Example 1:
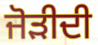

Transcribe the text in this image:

ਜੋੜੀਦੀ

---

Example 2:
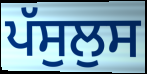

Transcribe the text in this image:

ਪੱਸੁਲੁਸ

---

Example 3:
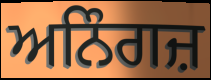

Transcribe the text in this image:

ਅਨਿੰਗਜ਼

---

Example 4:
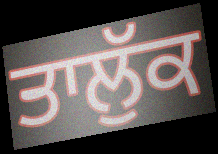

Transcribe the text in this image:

ਤਾਲੁੱਕ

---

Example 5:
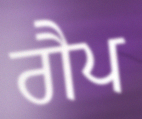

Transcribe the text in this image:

ਗੈਪ